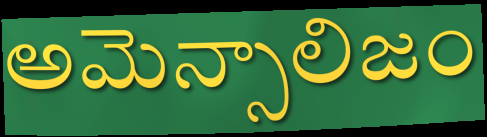
అమెన్సాలిజం